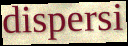
dispersi